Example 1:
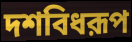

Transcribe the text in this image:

দশবিধরূপ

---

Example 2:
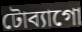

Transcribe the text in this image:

টোব্যাগো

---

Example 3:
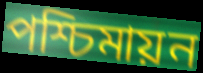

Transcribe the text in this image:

পশ্চিমায়ন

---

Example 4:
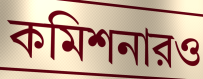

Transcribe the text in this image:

কমিশনারও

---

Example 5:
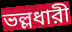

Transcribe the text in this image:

ভল্লধারী